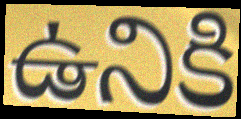
ఉనికి